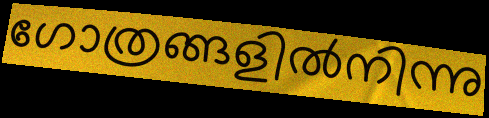
ഗോത്രങ്ങളിൽനിന്നു